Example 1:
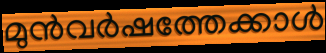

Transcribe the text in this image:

മുൻവർഷത്തേക്കാൾ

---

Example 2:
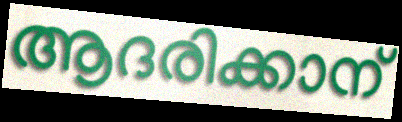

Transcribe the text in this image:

ആദരിക്കാന്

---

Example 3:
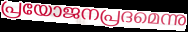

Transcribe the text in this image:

പ്രയോജനപ്രദമെന്നു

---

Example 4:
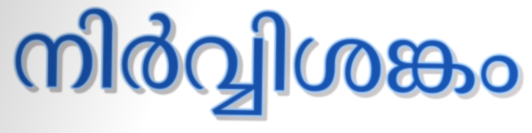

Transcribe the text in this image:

നിർവ്വിശങ്കം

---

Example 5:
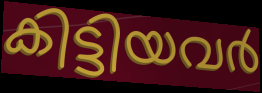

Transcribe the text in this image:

കിട്ടിയവർ